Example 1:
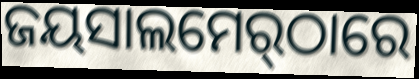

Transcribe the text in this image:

ଜୟସାଲମେର୍‌ଠାରେ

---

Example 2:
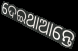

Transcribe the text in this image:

ଦେଇଥାଆନ୍ତେ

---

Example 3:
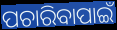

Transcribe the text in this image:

ପଚାରିବାପାଇଁ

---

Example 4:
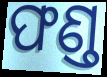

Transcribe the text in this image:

ଫଣ୍ଡ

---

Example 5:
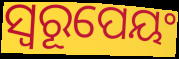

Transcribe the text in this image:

ସ୍ୱରୂପେୟଂ